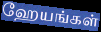
ஹேயங்கள்